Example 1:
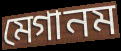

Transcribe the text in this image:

মেগানম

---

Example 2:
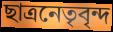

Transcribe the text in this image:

ছাত্রনেতৃবৃন্দ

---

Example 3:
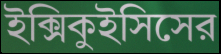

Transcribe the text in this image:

ইক্সিকুইসিসের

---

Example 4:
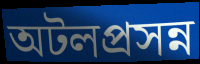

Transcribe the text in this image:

অটলপ্রসন্ন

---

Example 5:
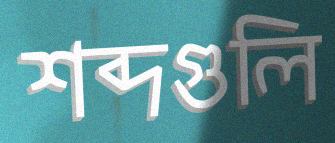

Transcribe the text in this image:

শব্দগুলি